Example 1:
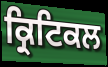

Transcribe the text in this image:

ਕ੍ਰਿਟਿਕਲ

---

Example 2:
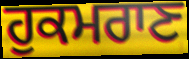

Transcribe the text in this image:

ਹੁਕਮਰਾਣ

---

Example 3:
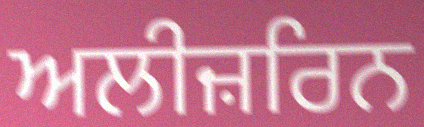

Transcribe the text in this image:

ਅਲੀਜ਼ਰਿਨ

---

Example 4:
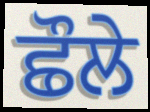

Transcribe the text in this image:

ਛੌਲੇ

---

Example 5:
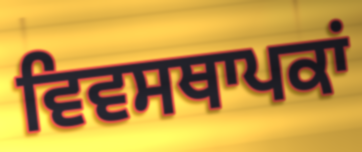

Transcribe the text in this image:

ਵਿਵਸਥਾਪਕਾਂ